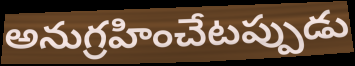
అనుగ్రహించేటప్పుడు